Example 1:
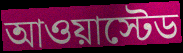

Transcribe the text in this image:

আওয়াস্টেড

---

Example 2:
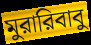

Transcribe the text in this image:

মুরারিবাবু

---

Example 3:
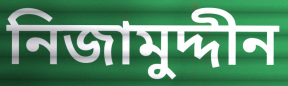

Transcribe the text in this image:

নিজামুদ্দীন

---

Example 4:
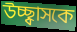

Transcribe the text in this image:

উচ্ছ্বাসকে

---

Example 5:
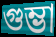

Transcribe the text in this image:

গুম্ভা